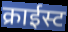
क्राईस्ट